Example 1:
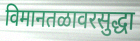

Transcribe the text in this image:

विमानतळावरसुद्धा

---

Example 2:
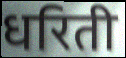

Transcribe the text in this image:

धरिती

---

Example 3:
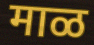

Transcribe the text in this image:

माळ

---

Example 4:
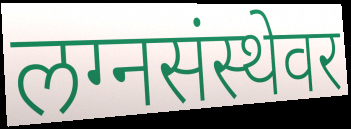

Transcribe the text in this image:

लग्नसंस्थेवर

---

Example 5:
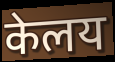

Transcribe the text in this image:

केलय